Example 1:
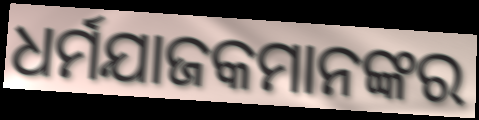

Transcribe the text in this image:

ଧର୍ମଯାଜକମାନଙ୍କର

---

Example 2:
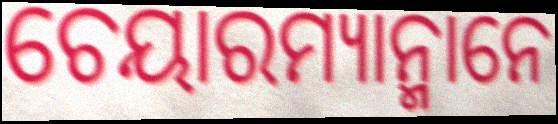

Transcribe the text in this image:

ଚେୟାରମ୍ୟାନ୍ମାନେ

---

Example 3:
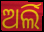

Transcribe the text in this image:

ଅର୍ଲି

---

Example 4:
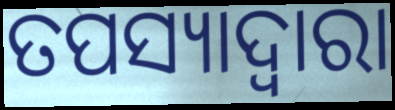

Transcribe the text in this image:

ତପସ୍ୟାଦ୍ୱାରା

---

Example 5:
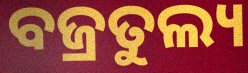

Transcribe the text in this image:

ବଜ୍ରତୁଲ୍ୟ